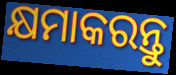
କ୍ଷମାକରନ୍ତୁ